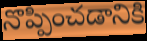
నొప్పించడానికి